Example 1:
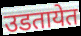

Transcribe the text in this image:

उडतायेत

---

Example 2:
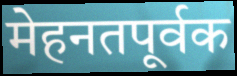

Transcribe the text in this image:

मेहनतपूर्वक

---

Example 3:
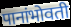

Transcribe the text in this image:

पानांभोवती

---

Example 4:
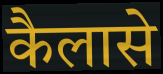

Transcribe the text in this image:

कैलासे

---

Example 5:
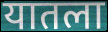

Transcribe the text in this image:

यातला